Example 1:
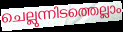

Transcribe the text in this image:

ചെല്ലുന്നിടത്തെല്ലാം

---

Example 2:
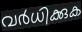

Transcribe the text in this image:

വർധിക്കുക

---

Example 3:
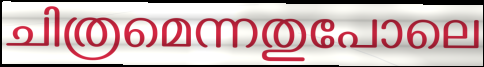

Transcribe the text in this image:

ചിത്രമെന്നതുപോലെ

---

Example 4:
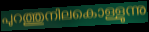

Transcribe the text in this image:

പുറത്തുനിലകൊള്ളുന്നു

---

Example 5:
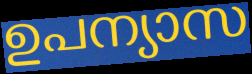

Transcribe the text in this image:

ഉപന്യാസ